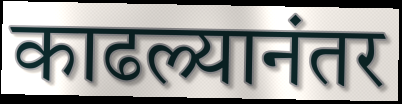
काढल्यानंतर